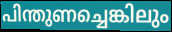
പിന്തുണച്ചെങ്കിലും